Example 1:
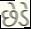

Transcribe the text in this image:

છેડે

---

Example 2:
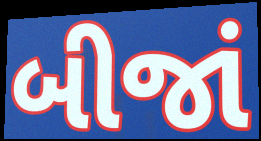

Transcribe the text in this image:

બીજાં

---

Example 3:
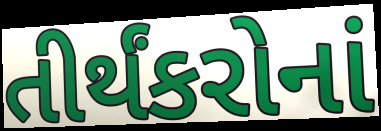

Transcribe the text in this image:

તીર્થંકરોનાં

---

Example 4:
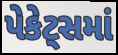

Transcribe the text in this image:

પેકેટ્સમાં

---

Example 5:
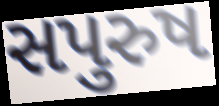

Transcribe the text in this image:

સપુરુષ